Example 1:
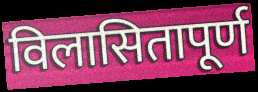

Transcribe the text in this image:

विलासितापूर्ण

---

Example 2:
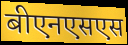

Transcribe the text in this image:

बीएनएसएस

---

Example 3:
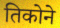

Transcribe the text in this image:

तिकोने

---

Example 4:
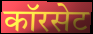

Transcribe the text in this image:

कॉरसेट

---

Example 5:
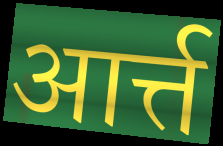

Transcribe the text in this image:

आर्त्त